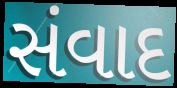
સંવાદ